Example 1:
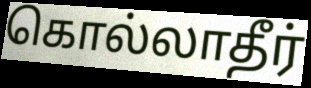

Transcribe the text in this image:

கொல்லாதீர்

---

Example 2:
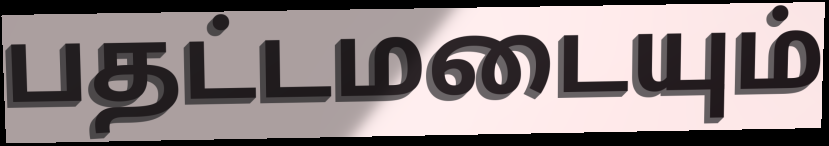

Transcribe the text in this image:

பதட்டமடையும்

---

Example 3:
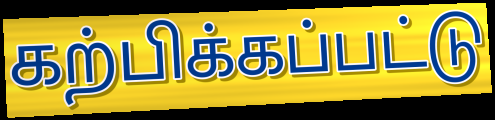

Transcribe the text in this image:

கற்பிக்கப்பட்டு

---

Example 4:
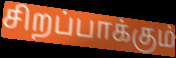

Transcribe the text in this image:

சிறப்பாக்கும்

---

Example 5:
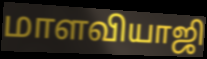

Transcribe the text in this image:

மாளவியாஜி